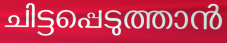
ചിട്ടപ്പെടുത്താൻ